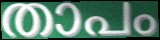
താപം